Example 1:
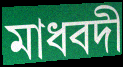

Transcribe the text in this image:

মাধবদী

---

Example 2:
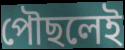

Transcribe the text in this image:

পৌছলেই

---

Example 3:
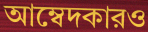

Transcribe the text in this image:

আম্বেদকারও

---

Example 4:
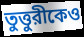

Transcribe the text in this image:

তুত্তুরীকেও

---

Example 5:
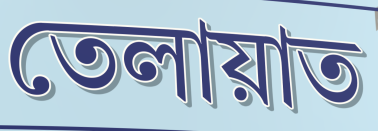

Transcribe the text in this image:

তেলায়াত